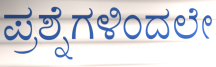
ಪ್ರಶ್ನೆಗಳಿಂದಲೇ